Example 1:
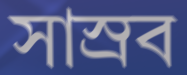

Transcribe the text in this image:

সাস্রব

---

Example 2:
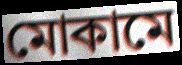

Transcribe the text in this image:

মোকামে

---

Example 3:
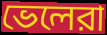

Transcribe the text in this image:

ভেলেরা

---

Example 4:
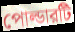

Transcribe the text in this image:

পোল্ডারটি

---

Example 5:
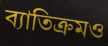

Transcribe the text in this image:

ব্যাতিক্রমও